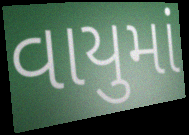
વાયુમાં